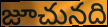
జూచునది